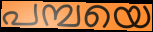
പമ്പയെ